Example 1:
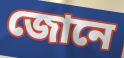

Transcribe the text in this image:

জোনে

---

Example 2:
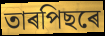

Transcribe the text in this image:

তাৰপিছৰে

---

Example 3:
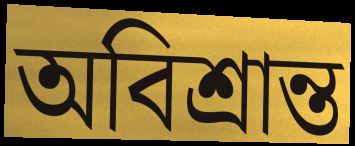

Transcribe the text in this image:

অবিশ্ৰান্ত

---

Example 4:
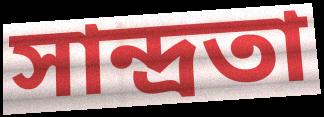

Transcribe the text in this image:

সান্দ্ৰতা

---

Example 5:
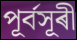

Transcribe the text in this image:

পূৰ্বসূৰী